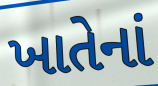
ખાતેનાં